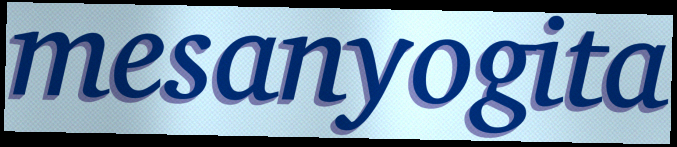
mesanyogita